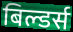
बिल्डर्स